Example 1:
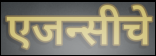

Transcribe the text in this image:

एजन्सीचे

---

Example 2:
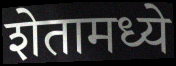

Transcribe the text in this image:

शेतामध्ये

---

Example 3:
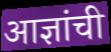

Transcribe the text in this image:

आज्ञांची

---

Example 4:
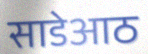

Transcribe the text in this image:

साडेआठ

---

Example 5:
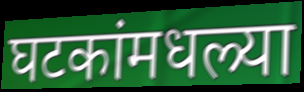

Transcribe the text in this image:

घटकांमधल्या